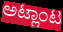
ಅಟ್ಲಾಂಟ